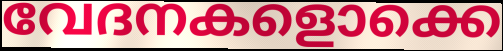
വേദനകളൊക്കെ